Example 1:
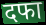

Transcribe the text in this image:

दफा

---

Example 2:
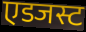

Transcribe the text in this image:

एडजस्ट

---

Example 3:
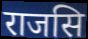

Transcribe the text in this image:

राजसि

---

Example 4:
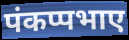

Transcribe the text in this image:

पंकप्पभाए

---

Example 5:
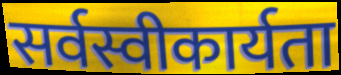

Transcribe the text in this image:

सर्वस्वीकार्यता